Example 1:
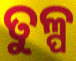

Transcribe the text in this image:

ତୁଳ୍ପ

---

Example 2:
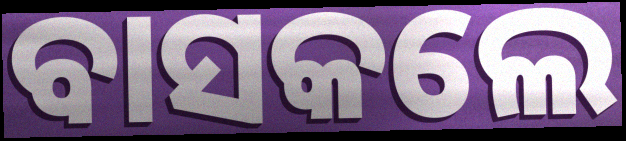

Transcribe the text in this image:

ବାସକଲେ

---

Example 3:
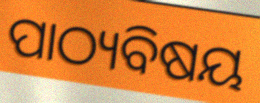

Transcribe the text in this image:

ପାଠ୍ୟବିଷୟ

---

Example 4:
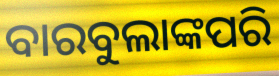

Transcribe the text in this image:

ବାରବୁଲାଙ୍କପରି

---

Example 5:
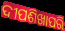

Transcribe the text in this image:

ଦୀପଶିଖାପରି